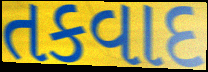
તકવાદ